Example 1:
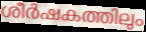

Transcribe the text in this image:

ശീർഷകത്തിലും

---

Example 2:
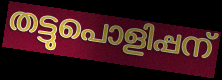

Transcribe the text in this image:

തട്ടുപൊളിപ്പന്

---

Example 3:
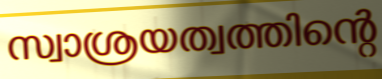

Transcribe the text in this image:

സ്വാശ്രയത്വത്തിന്റെ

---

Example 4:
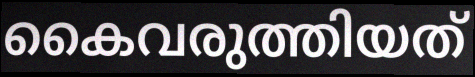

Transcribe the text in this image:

കൈവരുത്തിയത്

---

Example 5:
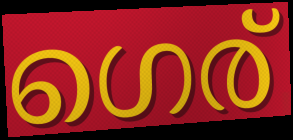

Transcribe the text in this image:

ഗെര്